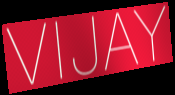
VIJAY